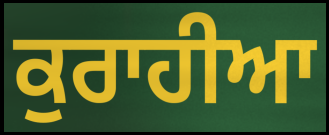
ਕੁਰਾਹੀਆ